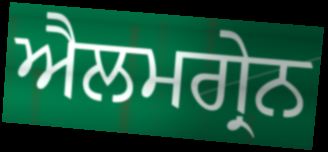
ਐਲਮਗ੍ਰੇਨ